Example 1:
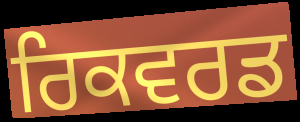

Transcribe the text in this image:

ਰਿਕਵਰਡ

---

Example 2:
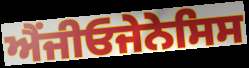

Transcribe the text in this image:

ਐਂਜੀਓਜੇਨੇਸਿਸ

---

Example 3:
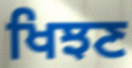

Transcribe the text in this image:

ਖਿਝਣ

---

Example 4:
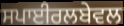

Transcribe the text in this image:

ਸਪਾਈਰਲਬੇਵਲ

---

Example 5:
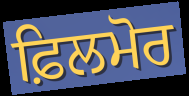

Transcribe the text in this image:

ਫ਼ਿਲਮੋਰ